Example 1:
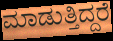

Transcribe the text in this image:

ಮಾಡುತ್ತಿದ್ದರೆ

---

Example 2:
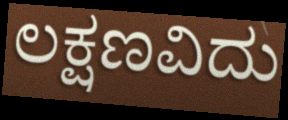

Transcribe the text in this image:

ಲಕ್ಷಣವಿದು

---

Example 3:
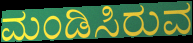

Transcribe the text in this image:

ಮಂಡಿಸಿರುವ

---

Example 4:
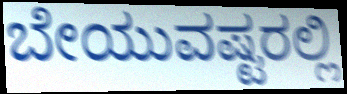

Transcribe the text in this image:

ಬೇಯುವಷ್ಟರಲ್ಲಿ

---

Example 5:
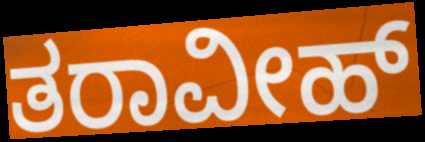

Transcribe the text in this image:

ತರಾವೀಹ್